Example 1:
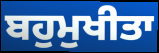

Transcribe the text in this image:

ਬਹੁਮੁਖੀਤਾ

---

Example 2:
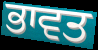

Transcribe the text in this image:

ਭਾਵਤ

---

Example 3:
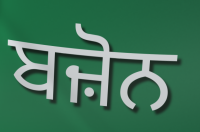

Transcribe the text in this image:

ਬਜ਼ੋਨ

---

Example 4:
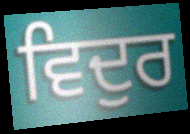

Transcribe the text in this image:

ਵਿਦੁਰ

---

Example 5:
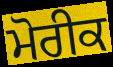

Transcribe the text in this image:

ਮੋਰੀਕ